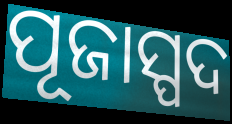
ପୂଜାସ୍ପଦ